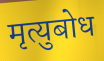
मृत्युबोध